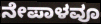
ನೇಪಾಳವೂ